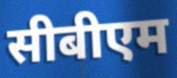
सीबीएम